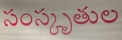
సంస్కృతుల